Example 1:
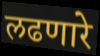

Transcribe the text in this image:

लढणारे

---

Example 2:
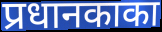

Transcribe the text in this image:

प्रधानकाका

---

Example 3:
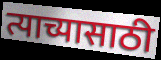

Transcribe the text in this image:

त्याच्यासाठी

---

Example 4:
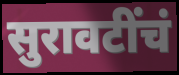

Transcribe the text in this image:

सुरावटींचं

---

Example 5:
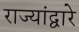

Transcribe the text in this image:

राज्यांद्वारे